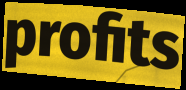
profits